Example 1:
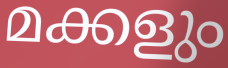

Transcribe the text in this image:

മക്കളും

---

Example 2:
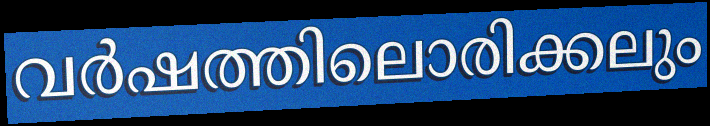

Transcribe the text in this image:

വർഷത്തിലൊരിക്കലും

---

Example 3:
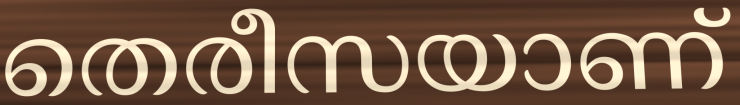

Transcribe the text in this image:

തെരീസയാണ്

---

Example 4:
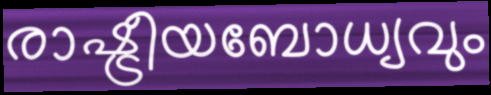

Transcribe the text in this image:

രാഷ്ട്രീയബോധ്യവും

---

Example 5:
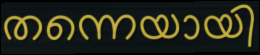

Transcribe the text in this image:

തന്നെയായി